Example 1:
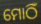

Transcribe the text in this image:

ମୋଠିଁ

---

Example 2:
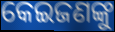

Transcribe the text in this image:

କେଇଜଣଙ୍କୁ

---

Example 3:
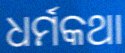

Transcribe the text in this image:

ଧର୍ମକଥା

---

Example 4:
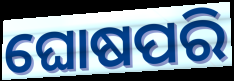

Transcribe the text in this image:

ଘୋଷପରି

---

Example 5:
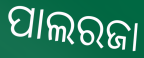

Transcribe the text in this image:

ପାଲରଜା